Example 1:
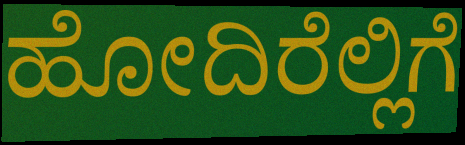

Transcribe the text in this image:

ಹೋದಿರೆಲ್ಲಿಗೆ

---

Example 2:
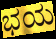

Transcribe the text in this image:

ಭಯ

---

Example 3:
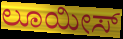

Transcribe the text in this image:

ಲೂಯೀಸ್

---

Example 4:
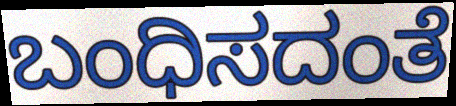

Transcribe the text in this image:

ಬಂಧಿಸದಂತೆ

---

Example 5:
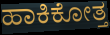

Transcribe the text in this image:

ಹಾಕಿಕೋತ್ತ